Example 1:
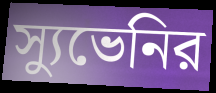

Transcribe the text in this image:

স্যুভেনির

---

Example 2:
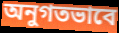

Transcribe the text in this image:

অনুগতভাবে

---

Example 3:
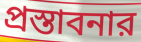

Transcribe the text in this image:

প্রস্তাবনার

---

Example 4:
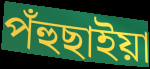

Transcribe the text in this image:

পঁহুছাইয়া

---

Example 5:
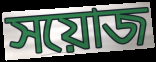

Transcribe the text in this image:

সয়োজ